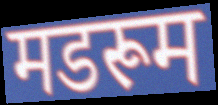
मडरूम